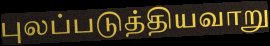
புலப்படுத்தியவாறு